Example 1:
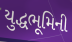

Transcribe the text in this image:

યુદ્ધભૂમિની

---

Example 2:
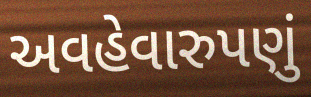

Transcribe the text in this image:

અવહેવારુપણું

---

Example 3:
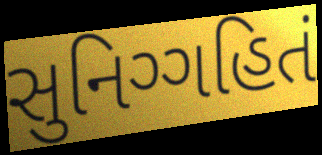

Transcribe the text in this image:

સુનિગ્ગહિતં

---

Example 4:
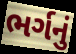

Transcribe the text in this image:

ભર્ગનું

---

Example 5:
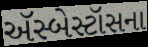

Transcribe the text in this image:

ઍસ્બેસ્ટૉસના